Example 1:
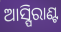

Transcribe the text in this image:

ଆସ୍ପିରାଣ୍ଟ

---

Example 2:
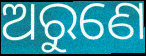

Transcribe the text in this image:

ଅରୁଣେ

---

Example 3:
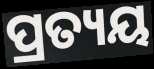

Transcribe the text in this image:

ପ୍ରତ୍ୟୟ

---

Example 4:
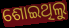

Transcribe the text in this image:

ଶୋଇଥିଲୁ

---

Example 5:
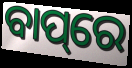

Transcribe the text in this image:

ବାପ୍‌ରେ